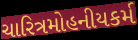
ચારિત્રમોહનીયકર્મ